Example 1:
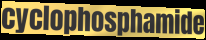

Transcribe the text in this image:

cyclophosphamide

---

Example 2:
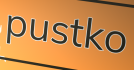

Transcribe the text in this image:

pustko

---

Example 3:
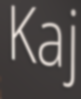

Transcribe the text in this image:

Kaj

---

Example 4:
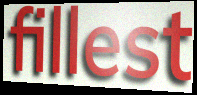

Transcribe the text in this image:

fillest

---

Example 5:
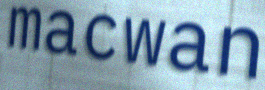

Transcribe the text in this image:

macwan